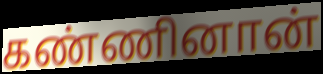
கண்ணினான்